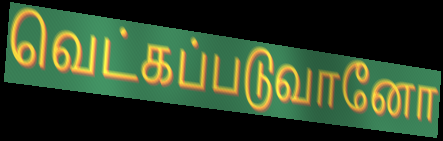
வெட்கப்படுவானோ